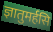
ज्ञातुमर्हसि